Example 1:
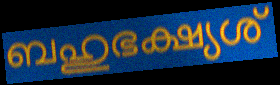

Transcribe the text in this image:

ബഹുഭക്ഷ്യശ്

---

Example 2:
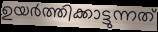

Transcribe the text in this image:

ഉയർത്തിക്കാട്ടുന്നത്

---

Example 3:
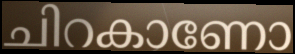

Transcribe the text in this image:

ചിറകാണോ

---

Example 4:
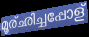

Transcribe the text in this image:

മൂര്ഛിച്ചപ്പോള്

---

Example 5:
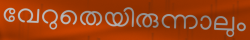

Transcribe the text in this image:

വേറുതെയിരുന്നാലും